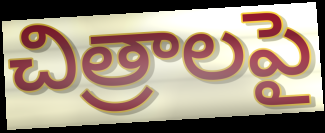
చిత్రాలపై